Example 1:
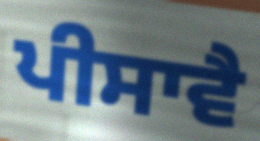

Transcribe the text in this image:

ਪੀਸਾਵੈ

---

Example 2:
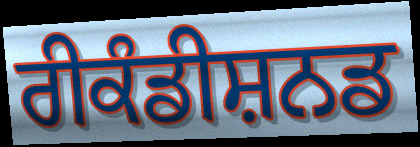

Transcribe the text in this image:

ਰੀਕੰਡੀਸ਼ਨਡ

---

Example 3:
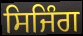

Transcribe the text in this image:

ਸਿਜਿੰਗ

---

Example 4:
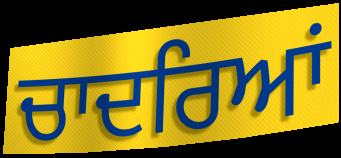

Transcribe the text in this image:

ਚਾਦਰਿਆਂ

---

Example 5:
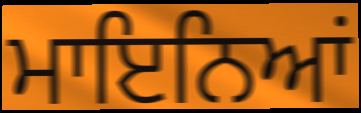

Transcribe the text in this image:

ਮਾਇਨਿਆਂ